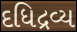
દધિદ્રવ્ય